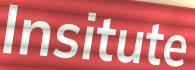
Insitute